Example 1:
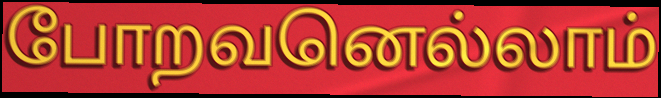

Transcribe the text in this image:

போறவனெல்லாம்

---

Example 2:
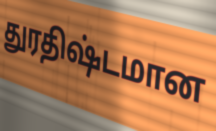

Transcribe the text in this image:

துரதிஷ்டமான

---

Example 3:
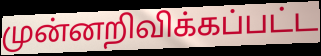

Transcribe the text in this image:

முன்னறிவிக்கப்பட்ட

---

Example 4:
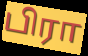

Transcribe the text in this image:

பிரா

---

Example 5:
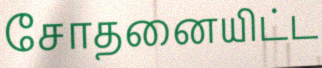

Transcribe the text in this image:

சோதனையிட்ட